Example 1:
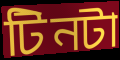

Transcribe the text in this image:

টিনটা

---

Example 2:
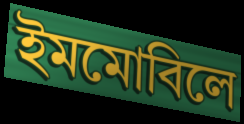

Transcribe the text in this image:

ইমমোবিলে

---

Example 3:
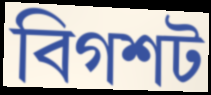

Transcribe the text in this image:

বিগশট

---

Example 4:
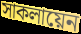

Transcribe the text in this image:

সাকলায়েন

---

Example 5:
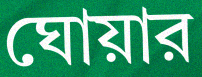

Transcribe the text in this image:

ঘোয়ার